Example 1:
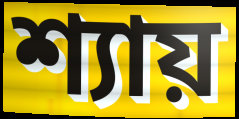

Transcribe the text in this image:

শ্যায়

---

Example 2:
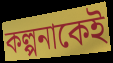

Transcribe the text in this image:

কল্পনাকেই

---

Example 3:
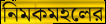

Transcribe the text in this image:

নিমকমহলের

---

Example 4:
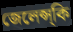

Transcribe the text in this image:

জেলেন্স্কি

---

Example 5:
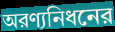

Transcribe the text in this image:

অরণ্যনিধনের